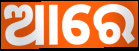
ଆରେ